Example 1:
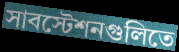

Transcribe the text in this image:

সাবস্টেশনগুলিতে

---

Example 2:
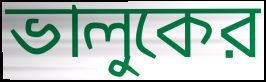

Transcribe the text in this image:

ভালুকের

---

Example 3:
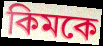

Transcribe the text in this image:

কিমকে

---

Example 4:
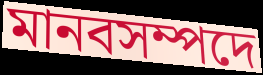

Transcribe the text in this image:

মানবসম্পদে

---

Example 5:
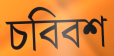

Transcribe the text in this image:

চবিবশ